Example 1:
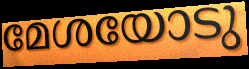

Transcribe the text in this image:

മേശയോടു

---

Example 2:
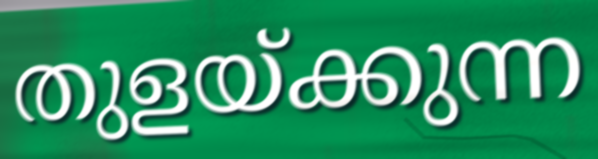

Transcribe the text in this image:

തുളയ്ക്കുന്ന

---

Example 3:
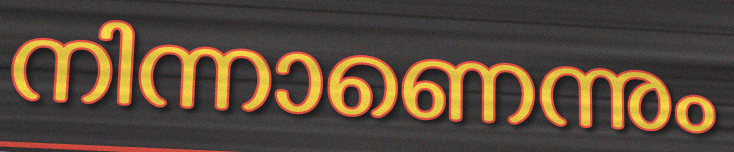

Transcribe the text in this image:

നിന്നാണെന്നും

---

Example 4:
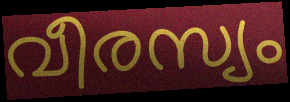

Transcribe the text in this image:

വീരസ്യം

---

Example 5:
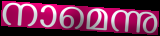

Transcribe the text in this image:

നാമെന്നു